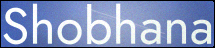
Shobhana